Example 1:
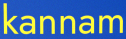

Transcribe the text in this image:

kannam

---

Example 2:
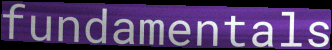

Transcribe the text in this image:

fundamentals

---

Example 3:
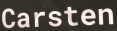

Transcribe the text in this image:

Carsten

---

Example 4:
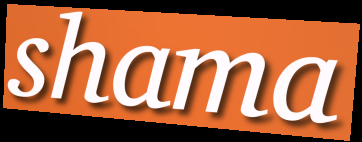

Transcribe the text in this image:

shama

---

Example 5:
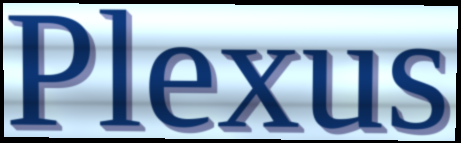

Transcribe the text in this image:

Plexus